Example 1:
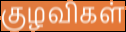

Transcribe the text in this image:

குழவிகள்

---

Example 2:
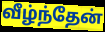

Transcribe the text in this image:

வீழ்ந்தேன்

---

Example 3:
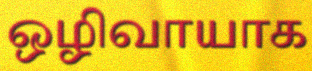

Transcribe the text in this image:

ஒழிவாயாக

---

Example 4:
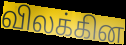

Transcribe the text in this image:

விலக்கின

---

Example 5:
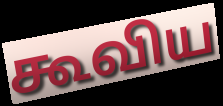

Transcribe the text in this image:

கூவிய